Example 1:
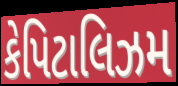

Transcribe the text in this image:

કેપિટાલિઝમ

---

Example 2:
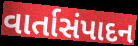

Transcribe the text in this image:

વાર્તાસંપાદન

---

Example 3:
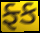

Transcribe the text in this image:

ફ્ક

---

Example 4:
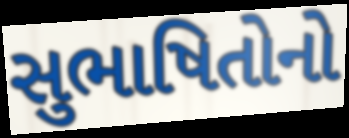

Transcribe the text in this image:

સુભાષિતોનો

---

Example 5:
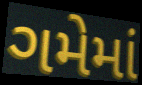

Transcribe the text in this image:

ગમેમાં